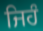
ਜਿਹੰ